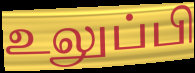
உலுப்பி